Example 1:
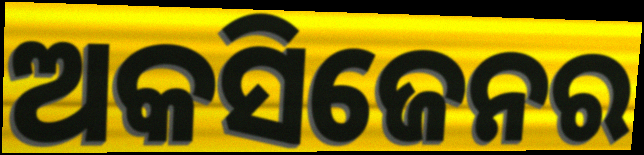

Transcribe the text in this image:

ଅକସିଜେନର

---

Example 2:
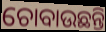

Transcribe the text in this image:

ଚୋବାଉଛନ୍ତି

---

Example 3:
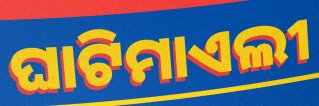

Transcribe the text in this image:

ଘାଟିମାଏଲୀ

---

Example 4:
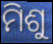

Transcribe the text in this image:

ମିଶୁ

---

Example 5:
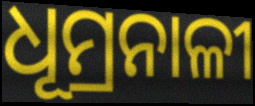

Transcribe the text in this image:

ଧୂମ୍ରନାଳୀ